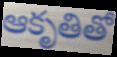
ఆకృతితో